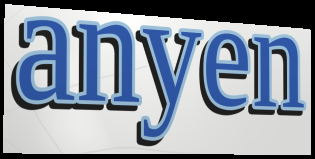
anyen